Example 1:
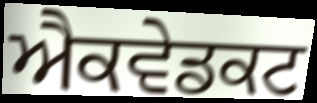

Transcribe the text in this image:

ਐਕਵੇਡਕਟ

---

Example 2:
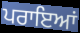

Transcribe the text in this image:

ਪਰਾਇਆਂ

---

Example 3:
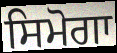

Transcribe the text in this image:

ਸਿਮੋਗਾ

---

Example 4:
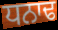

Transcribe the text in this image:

ਧਨਾਢ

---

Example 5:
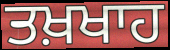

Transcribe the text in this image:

ਤਖ਼ਖਾਹ